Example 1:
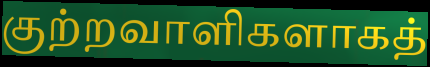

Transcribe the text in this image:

குற்றவாளிகளாகத்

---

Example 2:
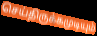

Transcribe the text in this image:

செய்திருக்கமுடியும்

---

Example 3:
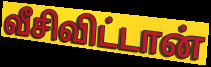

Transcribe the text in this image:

வீசிவிட்டான்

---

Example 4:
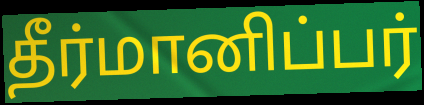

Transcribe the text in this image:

தீர்மானிப்பர்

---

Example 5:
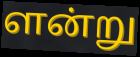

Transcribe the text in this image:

ளன்று